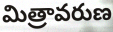
మిత్రావరుణ